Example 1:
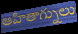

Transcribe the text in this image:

ఆహితాగ్నులు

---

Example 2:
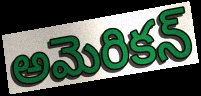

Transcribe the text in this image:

అమెరికన్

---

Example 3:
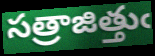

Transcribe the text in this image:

సత్రాజిత్తుఁ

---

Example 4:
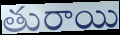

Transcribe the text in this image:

తురాయి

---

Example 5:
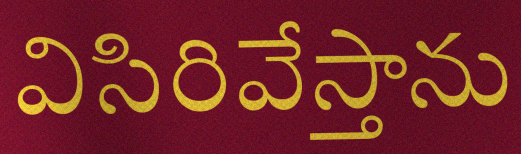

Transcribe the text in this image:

విసిరివేస్తాను